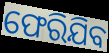
ଫେରିଯିବ